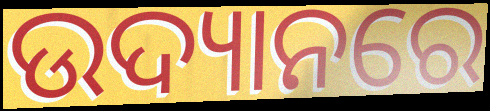
ଉଦ୍ୟାନରେ